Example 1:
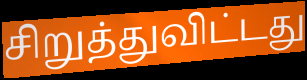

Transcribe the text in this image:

சிறுத்துவிட்டது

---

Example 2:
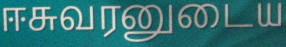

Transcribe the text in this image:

ஈசுவரனுடைய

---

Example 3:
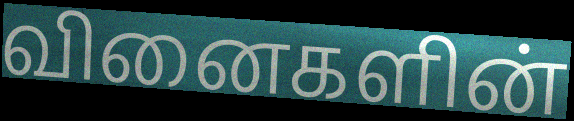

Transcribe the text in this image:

வினைகளின்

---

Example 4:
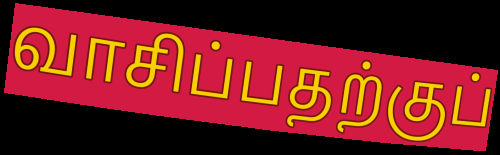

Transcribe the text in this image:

வாசிப்பதற்குப்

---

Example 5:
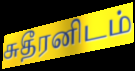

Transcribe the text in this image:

சுதீரனிடம்